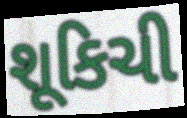
શૂકિચી